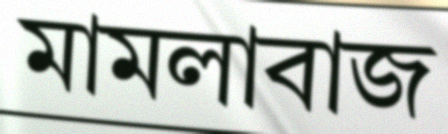
মামলাবাজ